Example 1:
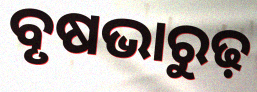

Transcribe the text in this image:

ବୃଷଭାରୁଢ଼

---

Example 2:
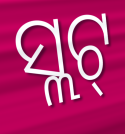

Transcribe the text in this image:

ସ୍ଲଟ୍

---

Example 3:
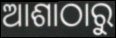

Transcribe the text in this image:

ଆଶାଠାରୁ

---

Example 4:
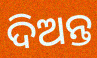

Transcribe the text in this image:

ଦିଅନ୍ତ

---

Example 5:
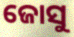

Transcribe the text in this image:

ଜୋସୁ